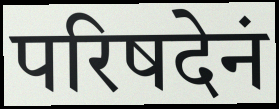
परिषदेनं